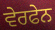
ਵੇਰਫੇਨ